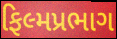
ફિલ્મપ્રભાગ